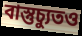
বাস্তুচ্যুতও